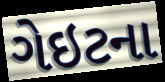
ગેઇટના